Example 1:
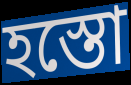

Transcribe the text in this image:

হস্তো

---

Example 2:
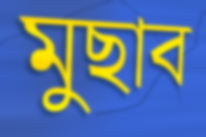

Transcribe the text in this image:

মুছাব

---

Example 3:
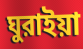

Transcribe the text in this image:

ঘুরাইয়া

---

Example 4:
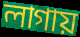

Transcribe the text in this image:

লাগায়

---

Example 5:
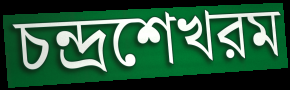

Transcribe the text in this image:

চন্দ্রশেখরম